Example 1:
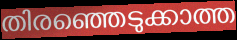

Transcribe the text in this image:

തിരഞ്ഞെടുക്കാത്ത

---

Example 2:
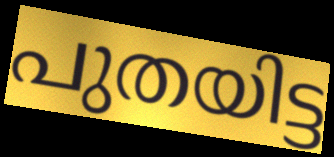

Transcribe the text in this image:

പുതയിട്ട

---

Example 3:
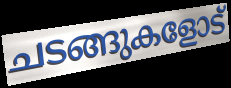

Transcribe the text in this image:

ചടങ്ങുകളോട്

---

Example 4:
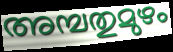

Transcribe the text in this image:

അമ്പതുമുഴം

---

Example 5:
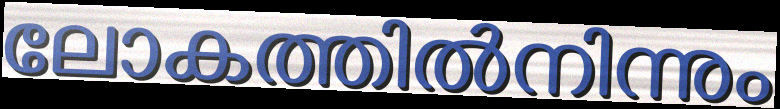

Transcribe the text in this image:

ലോകത്തിൽനിന്നും